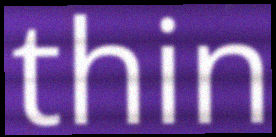
thin